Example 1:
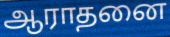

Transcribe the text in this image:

ஆராதனை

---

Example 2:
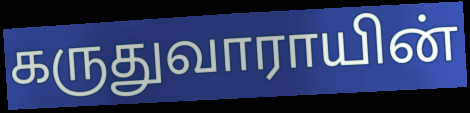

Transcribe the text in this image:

கருதுவாராயின்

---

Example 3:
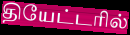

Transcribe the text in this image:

தியேட்டரில்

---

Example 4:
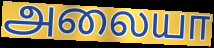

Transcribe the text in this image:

அலையா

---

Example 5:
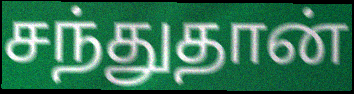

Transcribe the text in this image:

சந்துதான்